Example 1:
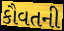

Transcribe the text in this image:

કૌવતની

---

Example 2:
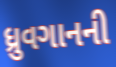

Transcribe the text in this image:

ધ્રુવગાનની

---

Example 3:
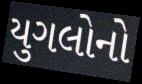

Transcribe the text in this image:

યુગલોનો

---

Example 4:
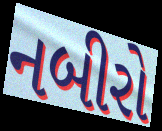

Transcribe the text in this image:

નબીરો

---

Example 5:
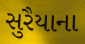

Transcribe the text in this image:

સુરૈયાના